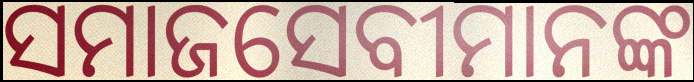
ସମାଜସେବୀମାନଙ୍କ